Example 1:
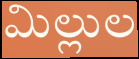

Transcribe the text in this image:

మిల్లుల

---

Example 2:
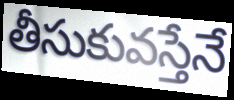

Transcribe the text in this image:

తీసుకువస్తేనే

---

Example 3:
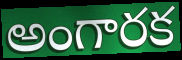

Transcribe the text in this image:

అంగారక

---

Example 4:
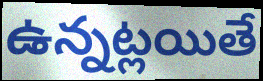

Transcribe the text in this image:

ఉన్నట్లయితే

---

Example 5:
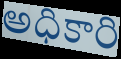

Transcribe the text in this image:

అధికారి